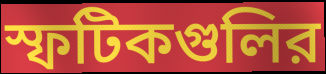
স্ফটিকগুলির